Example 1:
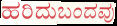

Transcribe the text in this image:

ಹರಿದುಬಂದವು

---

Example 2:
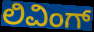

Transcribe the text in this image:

ಲಿವಿಂಗ್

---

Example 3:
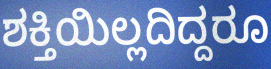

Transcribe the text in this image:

ಶಕ್ತಿಯಿಲ್ಲದಿದ್ದರೂ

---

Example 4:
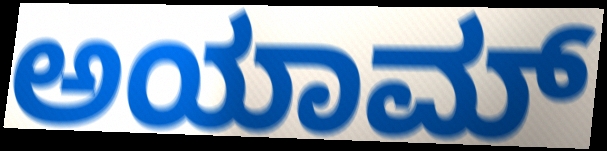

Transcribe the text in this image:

ಅಯಾಮ್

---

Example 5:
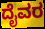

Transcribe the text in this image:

ದೈವರ